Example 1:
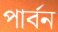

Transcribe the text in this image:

পার্বন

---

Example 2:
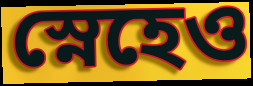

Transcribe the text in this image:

স্নেহেও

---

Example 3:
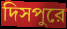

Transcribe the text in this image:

দিসপুরে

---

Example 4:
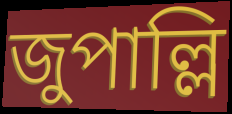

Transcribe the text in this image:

জুপাল্লি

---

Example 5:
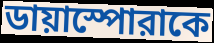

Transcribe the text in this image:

ডায়াস্পোরাকে